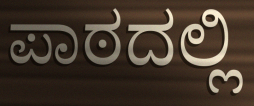
ಪಾಠದಲ್ಲಿ